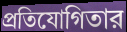
প্রতিযোগিতার